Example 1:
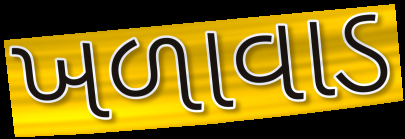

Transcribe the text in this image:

ખળાવાડ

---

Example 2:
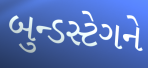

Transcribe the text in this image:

બુન્ડસ્ટેગને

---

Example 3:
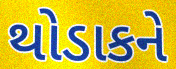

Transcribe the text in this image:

થોડાકને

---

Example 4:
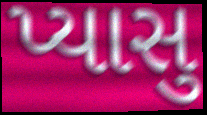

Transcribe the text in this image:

પ્યાસુ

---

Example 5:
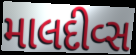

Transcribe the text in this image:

માલદીવ્સ